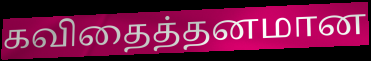
கவிதைத்தனமான